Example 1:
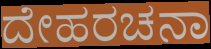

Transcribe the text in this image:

ದೇಹರಚನಾ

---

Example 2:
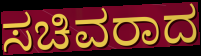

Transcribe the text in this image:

ಸಚಿವರಾದ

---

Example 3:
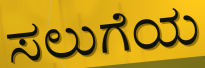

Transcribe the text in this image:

ಸಲುಗೆಯ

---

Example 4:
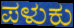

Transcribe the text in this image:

ಪಳುಕು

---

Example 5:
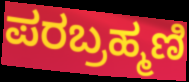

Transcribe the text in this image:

ಪರಬ್ರಹ್ಮಣಿ